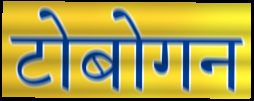
टोबोगन